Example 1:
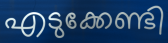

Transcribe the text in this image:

എടുക്കേണ്ടി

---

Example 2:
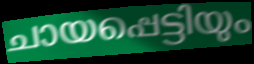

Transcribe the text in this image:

ചായപ്പെട്ടിയും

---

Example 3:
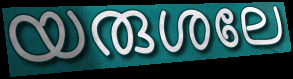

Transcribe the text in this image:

യരുശലേ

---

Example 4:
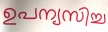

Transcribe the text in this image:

ഉപന്യസിച്ച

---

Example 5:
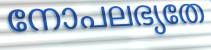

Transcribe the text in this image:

നോപലഭ്യതേ